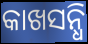
କାଖସନ୍ଧି